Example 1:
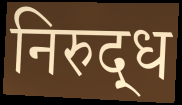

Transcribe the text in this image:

निरुद्ध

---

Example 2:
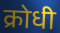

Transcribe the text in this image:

क्रोधी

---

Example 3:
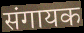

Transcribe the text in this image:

संगायक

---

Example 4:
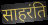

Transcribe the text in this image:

साहरंति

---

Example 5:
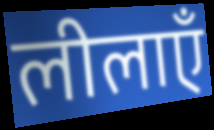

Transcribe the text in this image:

लीलाएँ